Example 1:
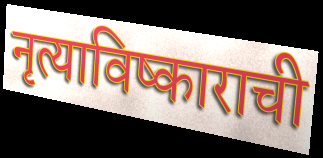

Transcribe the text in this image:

नृत्याविष्काराची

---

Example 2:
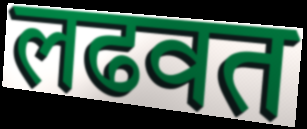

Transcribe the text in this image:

लढवत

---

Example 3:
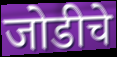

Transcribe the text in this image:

जोडीचे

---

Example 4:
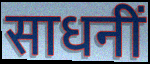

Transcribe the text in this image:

साधनीं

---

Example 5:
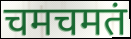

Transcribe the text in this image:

चमचमतं